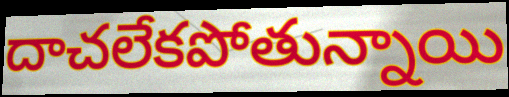
దాచలేకపోతున్నాయి